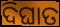
ଦିଘାତ